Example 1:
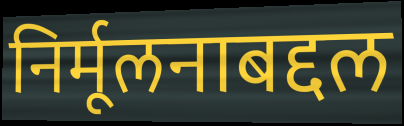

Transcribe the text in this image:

निर्मूलनाबद्दल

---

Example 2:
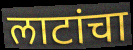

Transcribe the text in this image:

लाटांचा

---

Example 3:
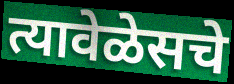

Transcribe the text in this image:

त्यावेळेसचे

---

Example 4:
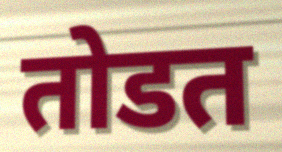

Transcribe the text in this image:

तोडत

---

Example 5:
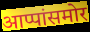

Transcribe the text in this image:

आप्पांसमोर